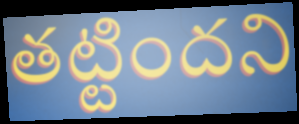
తట్టిందని